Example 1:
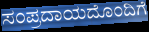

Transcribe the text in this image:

ಸಂಪ್ರದಾಯದೊಂದಿಗೆ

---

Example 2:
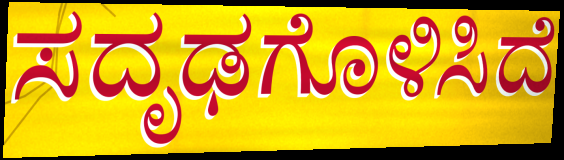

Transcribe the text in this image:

ಸದೃಢಗೊಳಿಸಿದೆ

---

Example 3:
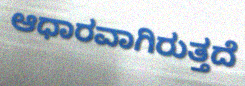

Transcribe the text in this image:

ಆಧಾರವಾಗಿರುತ್ತದೆ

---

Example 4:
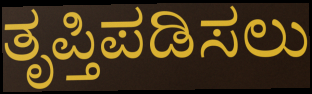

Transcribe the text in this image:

ತೃಪ್ತಿಪಡಿಸಲು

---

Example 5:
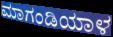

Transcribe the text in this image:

ಮಾಗಂಡಿಯಾಳ